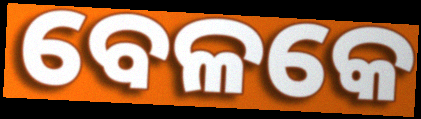
ବେଳକେ